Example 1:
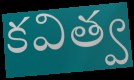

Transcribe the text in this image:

కవిత్వ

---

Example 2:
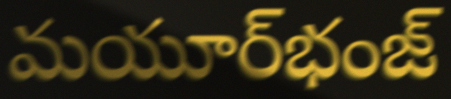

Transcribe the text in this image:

మయూర్‌భంజ్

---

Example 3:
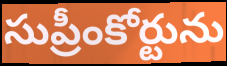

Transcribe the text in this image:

సుప్రీంకోర్టును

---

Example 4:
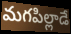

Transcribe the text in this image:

మగపిల్లాడే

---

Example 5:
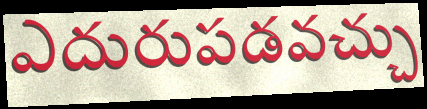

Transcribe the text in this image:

ఎదురుపడవచ్చు